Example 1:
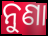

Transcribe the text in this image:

ନୁଣା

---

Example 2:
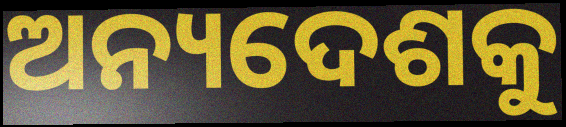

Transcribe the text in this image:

ଅନ୍ୟଦେଶକୁ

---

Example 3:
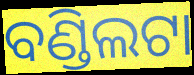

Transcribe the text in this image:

ବଣ୍ଡିଲଟା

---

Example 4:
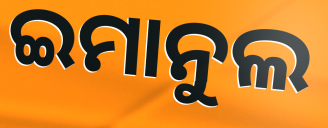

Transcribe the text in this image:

ଇମାନୁଲ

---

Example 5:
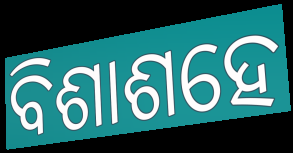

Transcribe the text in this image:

ବିଶାଶହେ